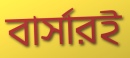
বার্সারই